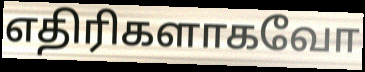
எதிரிகளாகவோ